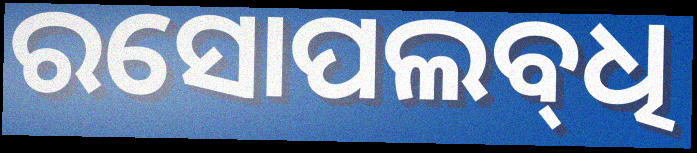
ରସୋପଲବ୍‌ଧି